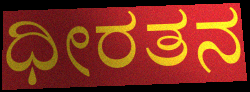
ಧೀರತನ